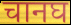
चानघ